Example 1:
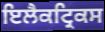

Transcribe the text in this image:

ਇਲੈਕਟ੍ਰਿਕਸ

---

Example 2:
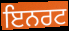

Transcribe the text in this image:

ਇਨਰਟ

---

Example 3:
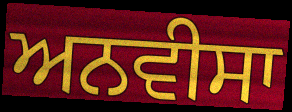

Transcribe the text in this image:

ਅਨਵੀਸਾ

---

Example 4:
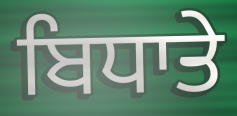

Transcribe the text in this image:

ਬਿਧਾਤੇ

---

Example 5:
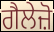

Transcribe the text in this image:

ਗੈਲੇਜ਼ੋ